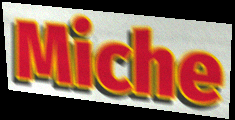
Miche